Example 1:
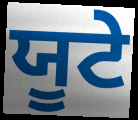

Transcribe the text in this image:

ਯੂਟੇ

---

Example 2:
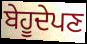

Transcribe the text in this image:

ਬੇਹੂਦੇਪਣ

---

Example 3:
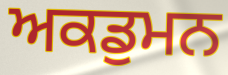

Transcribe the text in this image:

ਅਕਡੁਮਨ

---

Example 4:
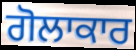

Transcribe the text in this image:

ਗੋਲਾਕਾਰ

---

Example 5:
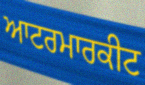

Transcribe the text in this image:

ਆਟਰਮਾਰਕੀਟ